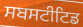
ਸਬਸਟੀਟਿਡ